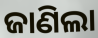
ଜାଣିଲା